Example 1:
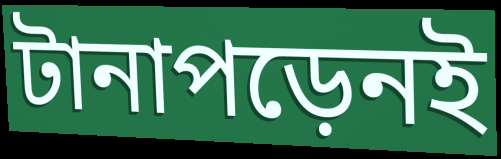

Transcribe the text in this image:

টানাপড়েনই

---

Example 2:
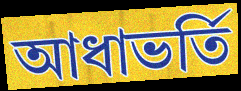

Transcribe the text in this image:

আধাভর্তি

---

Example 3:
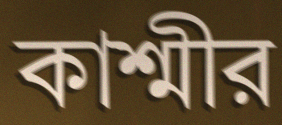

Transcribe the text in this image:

কাশ্মীর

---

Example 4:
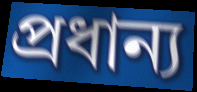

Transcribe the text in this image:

প্রধান্য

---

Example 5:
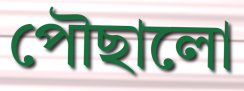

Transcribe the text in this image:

পৌছালো